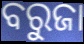
ବରୁଜା